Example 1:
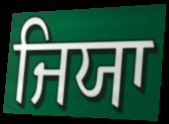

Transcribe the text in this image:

ਜਿਯਾ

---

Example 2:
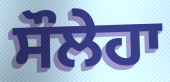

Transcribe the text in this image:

ਸੌਲੇਹਾ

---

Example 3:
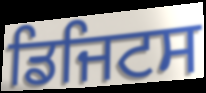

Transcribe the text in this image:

ਡਿਜਿਟਸ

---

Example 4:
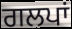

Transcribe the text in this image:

ਗਲਪਾਂ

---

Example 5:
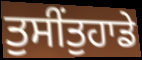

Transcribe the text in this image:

ਤੁਸੀਂਤੁਹਾਡੇ